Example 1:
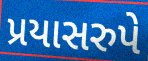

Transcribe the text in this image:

પ્રયાસરુપે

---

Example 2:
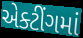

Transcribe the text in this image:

એક્ટીંગમાં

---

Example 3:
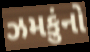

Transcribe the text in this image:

ઝમકુંનો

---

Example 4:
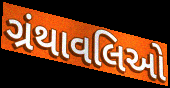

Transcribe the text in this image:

ગ્રંથાવલિઓ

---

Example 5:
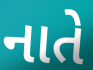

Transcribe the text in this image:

નાતે